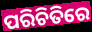
ପରିଚିତିରେ